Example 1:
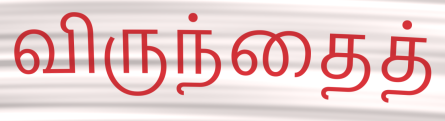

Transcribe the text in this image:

விருந்தைத்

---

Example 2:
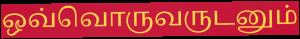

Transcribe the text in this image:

ஒவ்வொருவருடனும்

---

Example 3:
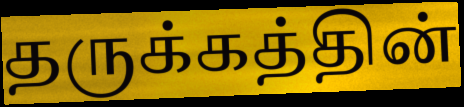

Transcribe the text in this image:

தருக்கத்தின்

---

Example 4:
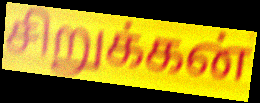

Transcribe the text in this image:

சிறுக்கன்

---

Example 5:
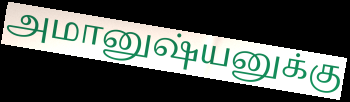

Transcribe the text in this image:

அமானுஷ்யனுக்கு